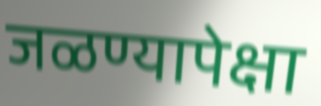
जळण्यापेक्षा